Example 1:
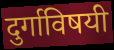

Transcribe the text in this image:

दुर्गाविषयी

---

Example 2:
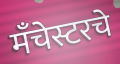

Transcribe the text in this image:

मँचेस्टरचे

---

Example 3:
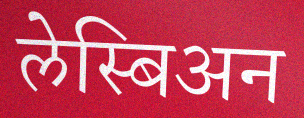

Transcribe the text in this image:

लेस्बिअन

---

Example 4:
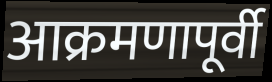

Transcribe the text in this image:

आक्रमणापूर्वी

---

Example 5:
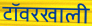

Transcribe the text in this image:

टॉवरखाली